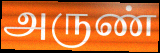
அருண்